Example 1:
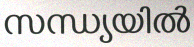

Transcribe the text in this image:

സന്ധ്യയിൽ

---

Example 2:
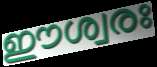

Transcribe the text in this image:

ഈശ്വരഃ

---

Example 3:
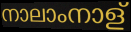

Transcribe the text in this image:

നാലാംനാള്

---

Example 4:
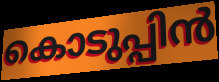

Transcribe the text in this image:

കൊടുപ്പിൻ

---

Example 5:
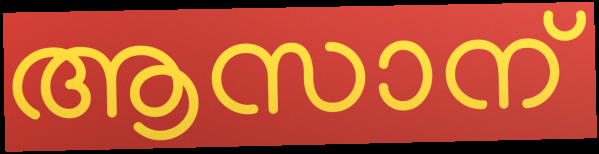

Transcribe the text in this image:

ആസാന്